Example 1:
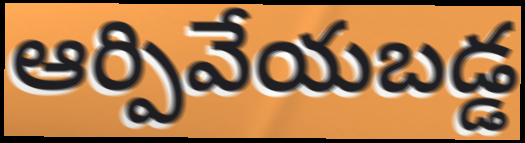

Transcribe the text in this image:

ఆర్పివేయబడ్డ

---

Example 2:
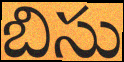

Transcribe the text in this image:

బిసు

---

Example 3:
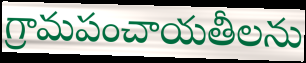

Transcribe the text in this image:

గ్రామపంచాయతీలను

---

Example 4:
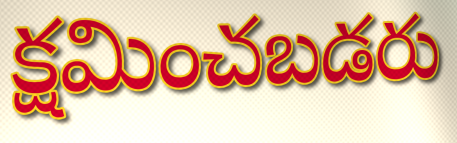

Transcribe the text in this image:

క్షమించబడరు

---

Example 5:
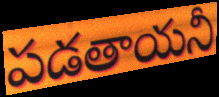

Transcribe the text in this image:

పడతాయనీ